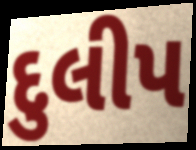
દુલીપ